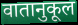
वातानुकूल